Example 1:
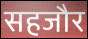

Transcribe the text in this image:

सहजौर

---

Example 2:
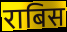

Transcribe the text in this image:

राबिस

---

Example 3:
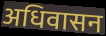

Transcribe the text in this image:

अधिवासन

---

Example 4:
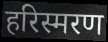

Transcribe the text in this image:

हरिस्मरण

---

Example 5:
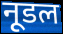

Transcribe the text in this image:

नूडल